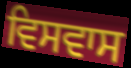
ਵਿਸਵਾਸ